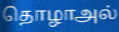
தொழாஅல்